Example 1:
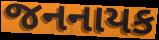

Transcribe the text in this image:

જનનાયક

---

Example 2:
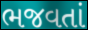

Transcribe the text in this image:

ભજવતાં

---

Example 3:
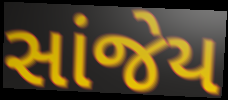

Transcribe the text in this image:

સાંજેય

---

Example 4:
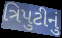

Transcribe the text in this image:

ત્રિપુટીનું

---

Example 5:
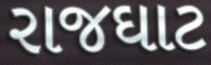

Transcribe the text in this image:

રાજઘાટ